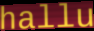
hallu